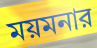
ময়মনার